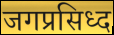
जगप्रसिध्द